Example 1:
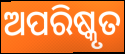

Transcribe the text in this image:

ଅପରିଷ୍କୃତ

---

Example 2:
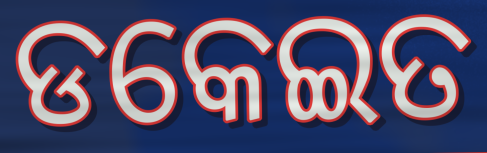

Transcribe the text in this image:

ଡକେଇତ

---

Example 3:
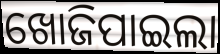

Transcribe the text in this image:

ଖୋଜିପାଇଲା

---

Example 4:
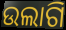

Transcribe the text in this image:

ଉଲାଗି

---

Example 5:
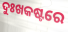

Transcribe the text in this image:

ଦୁଃଖକଷ୍ଟରେ